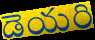
డెయరి